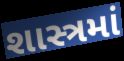
શાસ્ત્રમાં